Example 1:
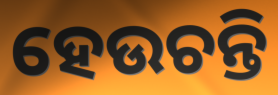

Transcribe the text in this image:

ହେଉଚନ୍ତି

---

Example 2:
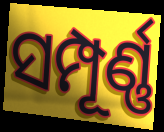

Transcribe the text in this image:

ସମ୍ପୂର୍ଣ୍ଣ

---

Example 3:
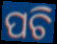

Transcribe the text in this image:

ପଚି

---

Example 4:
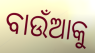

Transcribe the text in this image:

ବାଉଁଆକୁ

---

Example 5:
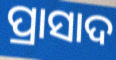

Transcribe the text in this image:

ପ୍ରାସାଦ